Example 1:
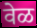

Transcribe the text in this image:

वेळ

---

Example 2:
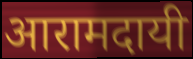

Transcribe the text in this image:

आरामदायी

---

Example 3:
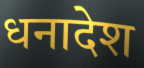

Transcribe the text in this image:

धनादेश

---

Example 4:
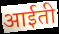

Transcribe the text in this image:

आईती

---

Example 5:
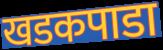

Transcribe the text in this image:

खडकपाडा